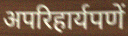
अपरिहार्यपणें